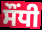
ਸੌਂਧੀ